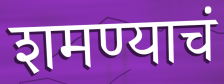
शमण्याचं